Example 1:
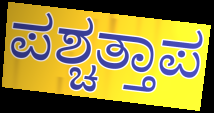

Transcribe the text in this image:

ಪಶ್ಚತ್ತಾಪ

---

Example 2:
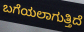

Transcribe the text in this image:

ಬಗೆಯಲಾಗುತ್ತಿದೆ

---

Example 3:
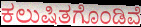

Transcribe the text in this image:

ಕಲುಷಿತಗೊಂಡಿವೆ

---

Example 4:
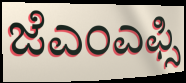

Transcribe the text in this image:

ಜೆಎಂಎಫ್ಸಿ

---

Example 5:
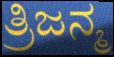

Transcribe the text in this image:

ತ್ರಿಜನ್ಮ